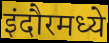
इंदौरमध्ये